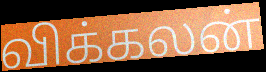
விக்கலன்